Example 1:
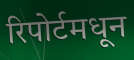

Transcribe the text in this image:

रिपोर्टमधून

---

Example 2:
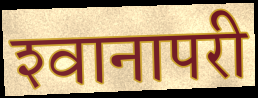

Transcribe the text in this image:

श्वानापरी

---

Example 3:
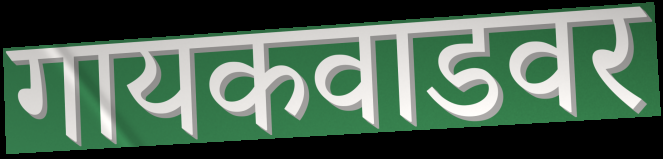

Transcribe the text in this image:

गायकवाडवर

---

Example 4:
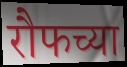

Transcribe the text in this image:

रौफच्या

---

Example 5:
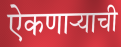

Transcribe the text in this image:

ऐकणार्‍याची